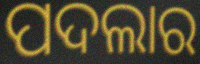
ପଦଲାର